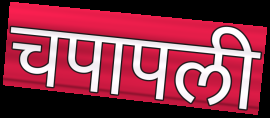
चपापली